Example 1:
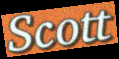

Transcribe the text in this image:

Scott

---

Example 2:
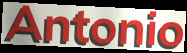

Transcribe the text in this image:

Antonio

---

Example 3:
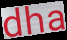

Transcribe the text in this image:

dha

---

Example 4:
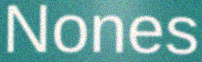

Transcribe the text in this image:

Nones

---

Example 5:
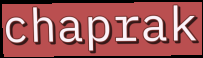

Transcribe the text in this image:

chaprak